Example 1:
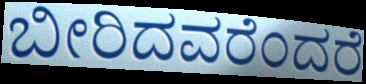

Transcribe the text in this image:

ಬೀರಿದವರೆಂದರೆ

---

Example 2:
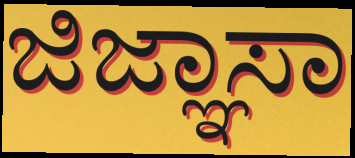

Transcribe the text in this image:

ಜಿಜ್ಞಾಸಾ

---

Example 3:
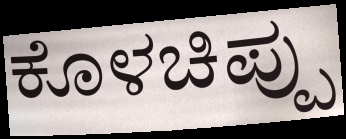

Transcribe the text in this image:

ಕೊಳಚಿಪ್ಪು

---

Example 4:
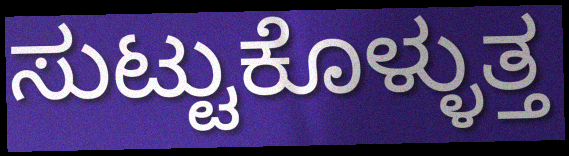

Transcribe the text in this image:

ಸುಟ್ಟುಕೊಳ್ಳುತ್ತ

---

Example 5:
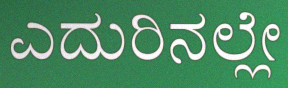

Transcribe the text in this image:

ಎದುರಿನಲ್ಲೇ